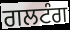
ਗਲਟੰਗ